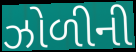
ઝોળીની